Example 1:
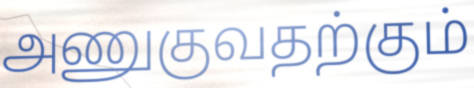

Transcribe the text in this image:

அணுகுவதற்கும்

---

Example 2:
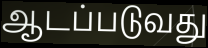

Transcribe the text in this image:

ஆடப்படுவது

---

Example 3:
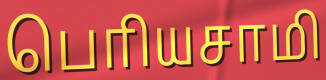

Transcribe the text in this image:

பெரியசாமி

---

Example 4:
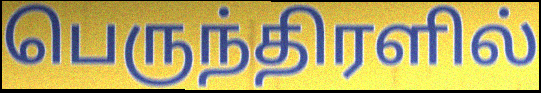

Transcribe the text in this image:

பெருந்திரளில்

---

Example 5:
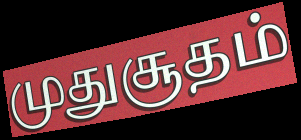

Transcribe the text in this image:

முதுசூதம்